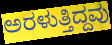
ಅರಳುತ್ತಿದ್ದವು